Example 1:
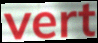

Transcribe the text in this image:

vert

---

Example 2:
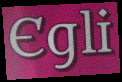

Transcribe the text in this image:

Egli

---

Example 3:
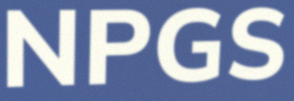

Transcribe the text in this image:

NPGS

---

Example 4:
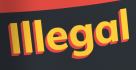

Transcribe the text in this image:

Illegal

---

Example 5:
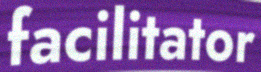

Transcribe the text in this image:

facilitator